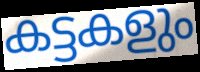
കട്ടകളും